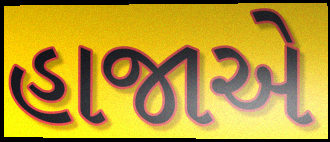
હાજાએ